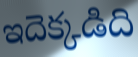
ఇదెక్కడిది